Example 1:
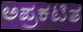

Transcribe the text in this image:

ಅಪ್ರಕಟಿತ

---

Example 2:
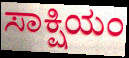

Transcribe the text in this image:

ಸಾಕ್ಷಿಯಂ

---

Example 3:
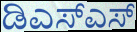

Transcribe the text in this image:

ಡಿಎಸ್ಎಸ್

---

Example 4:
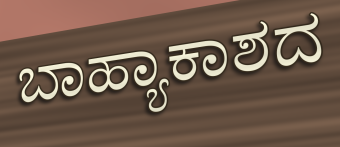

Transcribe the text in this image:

ಬಾಹ್ಯಾಕಾಶದ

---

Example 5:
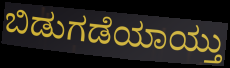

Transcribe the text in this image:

ಬಿಡುಗಡೆಯಾಯ್ತು